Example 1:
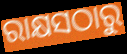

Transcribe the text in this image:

ରାକ୍ଷସଠାରୁ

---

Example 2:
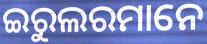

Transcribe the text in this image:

ଇରୁଲରମାନେ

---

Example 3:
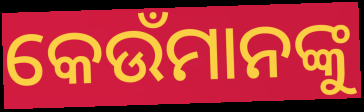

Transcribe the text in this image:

କେଉଁମାନଙ୍କୁ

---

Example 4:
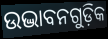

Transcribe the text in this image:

ଉଦ୍ଭାବନଗୁଡ଼ିକ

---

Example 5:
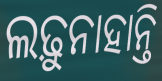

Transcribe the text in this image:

ଲଢ଼ୁନାହାନ୍ତି